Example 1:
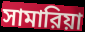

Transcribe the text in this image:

সামারিয়া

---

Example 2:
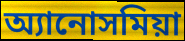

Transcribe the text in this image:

অ্যানোসমিয়া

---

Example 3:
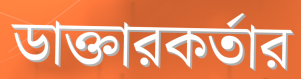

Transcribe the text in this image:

ডাক্তারকর্তার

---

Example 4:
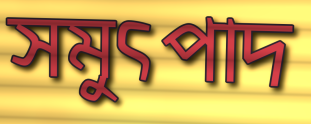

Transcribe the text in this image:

সমুৎপাদ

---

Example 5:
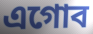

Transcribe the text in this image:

এগোব